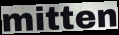
mitten